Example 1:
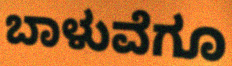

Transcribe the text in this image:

ಬಾಳುವೆಗೂ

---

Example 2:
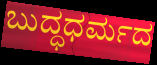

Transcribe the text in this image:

ಬುದ್ಧಧರ್ಮದ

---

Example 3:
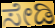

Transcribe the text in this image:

ಸೇಡಿ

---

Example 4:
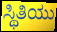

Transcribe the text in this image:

ಸ್ಥಿತಿಯು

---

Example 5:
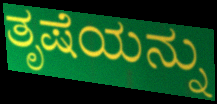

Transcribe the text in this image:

ತೃಷೆಯನ್ನು